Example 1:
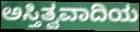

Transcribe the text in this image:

ಅಸ್ತಿತ್ವವಾದಿಯ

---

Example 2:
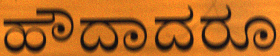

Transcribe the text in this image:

ಹೌದಾದರೂ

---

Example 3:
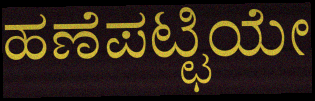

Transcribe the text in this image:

ಹಣೆಪಟ್ಟಿಯೇ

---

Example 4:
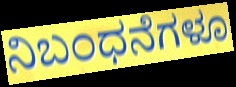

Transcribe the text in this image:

ನಿಬಂಧನೆಗಳೂ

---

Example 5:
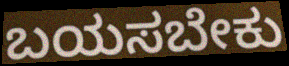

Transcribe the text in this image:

ಬಯಸಬೇಕು